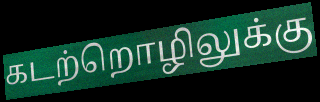
கடற்றொழிலுக்கு